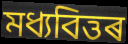
মধ্যবিত্তৰ